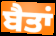
ਬੈਤਾਂ